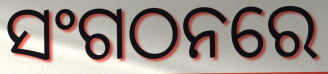
ସଂଗଠନରେ